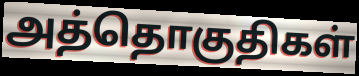
அத்தொகுதிகள்